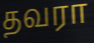
தவரா